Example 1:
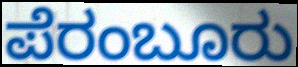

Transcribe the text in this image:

ಪೆರಂಬೂರು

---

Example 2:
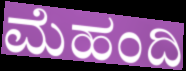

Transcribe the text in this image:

ಮೆಹಂದಿ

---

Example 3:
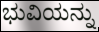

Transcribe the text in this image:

ಭುವಿಯನ್ನು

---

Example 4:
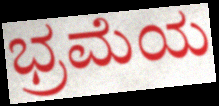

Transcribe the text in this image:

ಭ್ರಮೆಯ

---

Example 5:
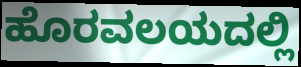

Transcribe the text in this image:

ಹೊರವಲಯದಲ್ಲಿ